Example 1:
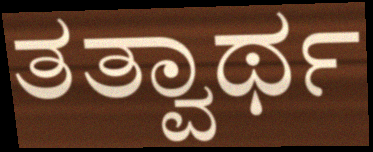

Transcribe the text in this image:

ತತ್ವಾರ್ಥ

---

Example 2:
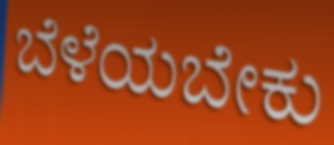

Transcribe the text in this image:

ಬೆಳೆಯಬೇಕು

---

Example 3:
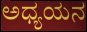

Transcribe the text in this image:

ಅಧ್ಯಯನ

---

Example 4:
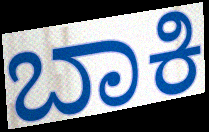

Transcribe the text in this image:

ಬಾಕಿ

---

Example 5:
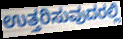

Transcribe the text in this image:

ಉತ್ತರಿಸುವುದರಲ್ಲಿ